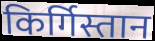
किर्गिस्तान